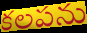
కలపను